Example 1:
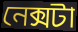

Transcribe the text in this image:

নেক্সটা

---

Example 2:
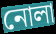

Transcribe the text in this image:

নোলা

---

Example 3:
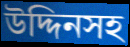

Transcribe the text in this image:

উদ্দিনসহ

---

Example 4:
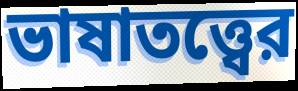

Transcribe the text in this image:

ভাষাতত্ত্বের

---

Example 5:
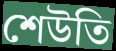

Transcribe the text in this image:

শেউতি